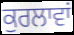
ਕੁਰਲਾਵਾਂ